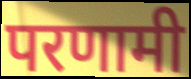
परणामी